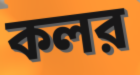
কলর